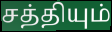
சத்தியும்